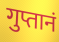
गुप्तानं